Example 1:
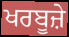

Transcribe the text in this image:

ਖਰਬੂਜ਼ੇ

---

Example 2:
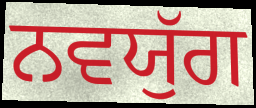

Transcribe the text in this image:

ਨਵਯੁੱਗ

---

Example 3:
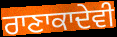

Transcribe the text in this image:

ਰਾਣਾਕਾਦੇਵੀ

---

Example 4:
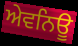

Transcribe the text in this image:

ਅੇਵਨਿਊ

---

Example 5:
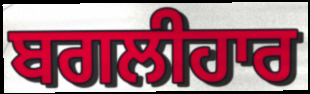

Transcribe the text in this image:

ਬਗਲੀਹਾਰ